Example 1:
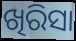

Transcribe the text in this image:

ଖିରିସା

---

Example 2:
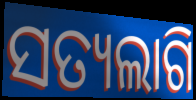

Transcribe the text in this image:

ସତ୍ୟଲାଗି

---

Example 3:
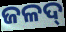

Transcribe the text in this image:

ଜଳଦ୍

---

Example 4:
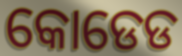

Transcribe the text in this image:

କୋଡେଡ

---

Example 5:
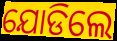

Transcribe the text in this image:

ଯୋଡିଲେ